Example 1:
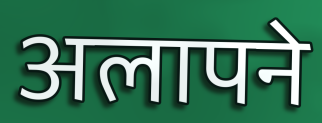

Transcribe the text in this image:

अलापने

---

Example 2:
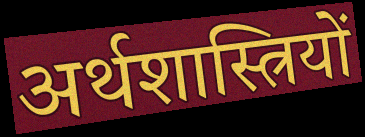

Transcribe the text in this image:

अर्थशास्त्रियों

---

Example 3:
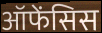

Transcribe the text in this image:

ऑफेंसिस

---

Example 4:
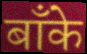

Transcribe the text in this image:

बाँके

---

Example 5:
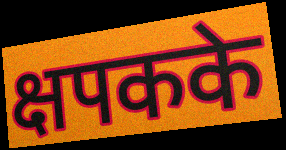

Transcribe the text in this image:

क्षपकके